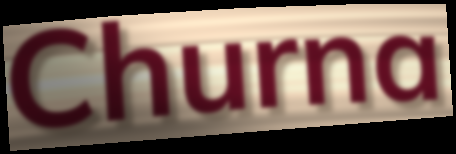
Churna